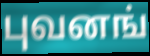
புவனங்